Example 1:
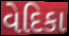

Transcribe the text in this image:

વેદિકા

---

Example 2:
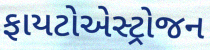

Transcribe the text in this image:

ફાયટોએસ્ટ્રોજન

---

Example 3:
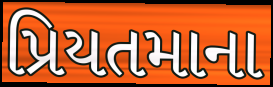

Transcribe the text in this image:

પ્રિયતમાના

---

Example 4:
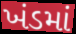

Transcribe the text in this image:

ખંડમાં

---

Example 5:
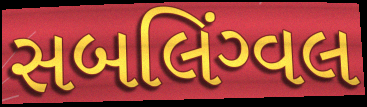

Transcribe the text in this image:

સબલિંગ્વલ